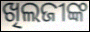
ଖିଲଜୀଙ୍କ